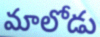
మాలోడు